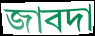
জাবদা